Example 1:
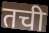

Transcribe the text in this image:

तची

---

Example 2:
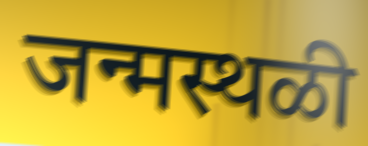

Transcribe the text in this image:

जन्मस्थळी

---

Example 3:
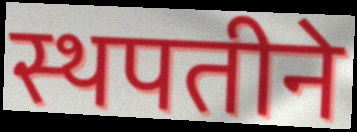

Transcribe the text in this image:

स्थपतीने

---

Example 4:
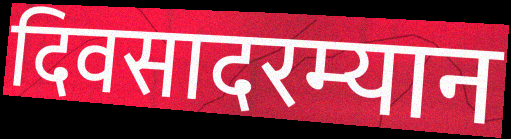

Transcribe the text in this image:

दिवसादरम्यान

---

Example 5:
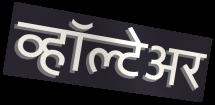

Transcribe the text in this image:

व्हॉल्टेअर